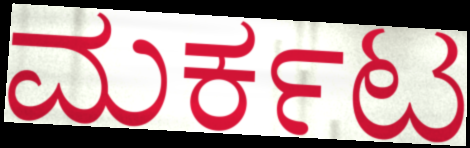
ಮರ್ಕಟ